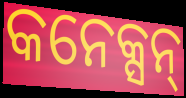
କନେକ୍ସନ୍